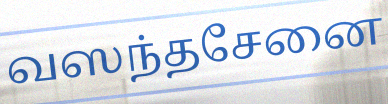
வஸந்தசேனை